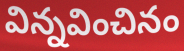
విన్నవించినం